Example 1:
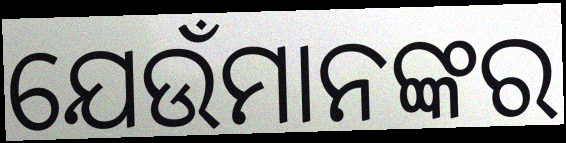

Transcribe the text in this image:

ଯେଉଁମାନଙ୍କର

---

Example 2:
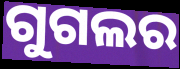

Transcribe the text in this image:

ଗୁଗଲର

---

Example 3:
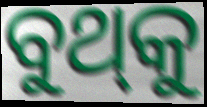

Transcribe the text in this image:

ବୁଥ୍‌କୁ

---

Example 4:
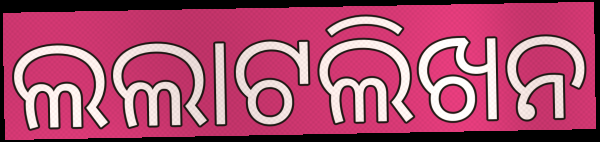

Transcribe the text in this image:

ଲଲାଟଲିଖନ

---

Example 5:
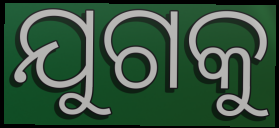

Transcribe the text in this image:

ଯୁଗକୁ